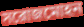
সরোজমোহন